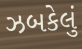
ઝબકેલું